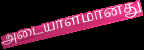
அடையாளமானது